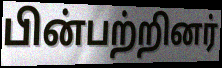
பின்பற்றினர்